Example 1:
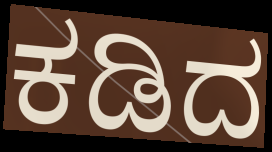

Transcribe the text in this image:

ಕಡಿದ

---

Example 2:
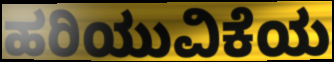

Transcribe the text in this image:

ಹರಿಯುವಿಕೆಯ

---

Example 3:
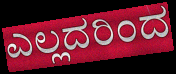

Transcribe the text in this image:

ಎಲ್ಲದರಿಂದ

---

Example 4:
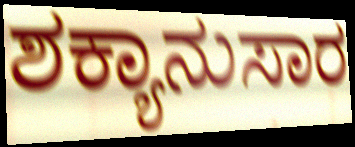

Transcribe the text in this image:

ಶಕ್ಯಾನುಸಾರ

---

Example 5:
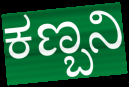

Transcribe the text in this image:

ಕಣ್ಬನಿ